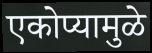
एकोप्यामुळे